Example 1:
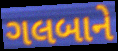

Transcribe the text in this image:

ગલબાને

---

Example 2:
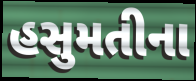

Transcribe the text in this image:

હસુમતીના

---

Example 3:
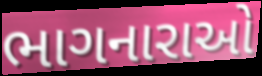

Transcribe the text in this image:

ભાગનારાઓ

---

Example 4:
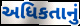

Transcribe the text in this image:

અધિકતાનું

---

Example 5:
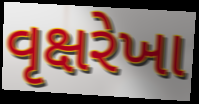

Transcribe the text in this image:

વૃક્ષરેખા